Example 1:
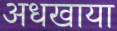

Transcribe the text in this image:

अधखाया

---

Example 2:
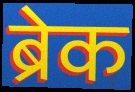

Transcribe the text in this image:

ब्रेक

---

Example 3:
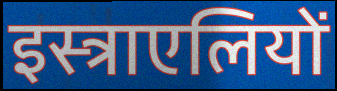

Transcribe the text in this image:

इस्त्राएलियों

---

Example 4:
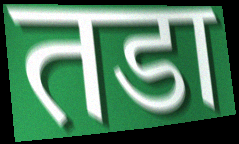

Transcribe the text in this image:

तडा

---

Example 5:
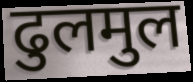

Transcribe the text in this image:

ढुलमुल